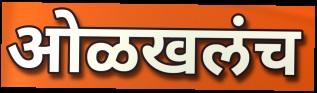
ओळखलंच